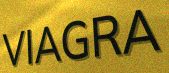
VIAGRA